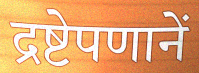
द्रष्टेपणानें